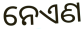
ନେଏଣ